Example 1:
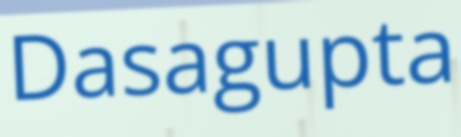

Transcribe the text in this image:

Dasagupta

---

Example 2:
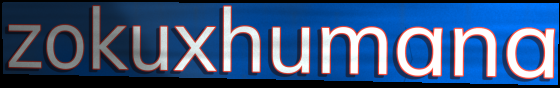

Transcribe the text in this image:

zokuxhumana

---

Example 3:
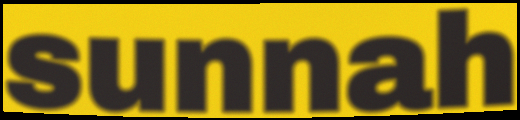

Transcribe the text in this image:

sunnah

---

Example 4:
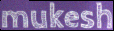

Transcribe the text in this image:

mukesh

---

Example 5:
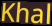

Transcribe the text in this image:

Khal